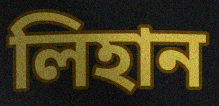
লিহান